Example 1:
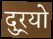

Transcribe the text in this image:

दुर्यो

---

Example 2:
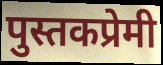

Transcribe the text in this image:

पुस्तकप्रेमी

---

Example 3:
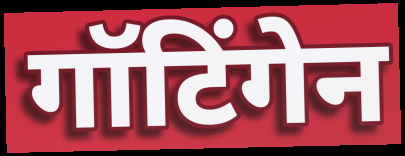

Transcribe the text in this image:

गॉटिंगेन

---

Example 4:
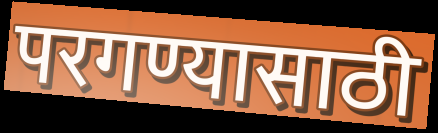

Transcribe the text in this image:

परगण्यासाठी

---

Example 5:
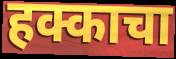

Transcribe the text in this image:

हक्काचा